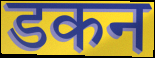
डकन